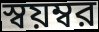
স্বয়ম্বর